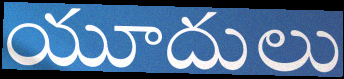
యూదులు